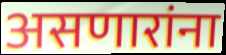
असणारांना